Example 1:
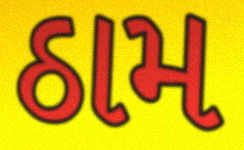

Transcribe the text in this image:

ઠામ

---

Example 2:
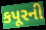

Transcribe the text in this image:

કપૂરની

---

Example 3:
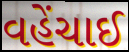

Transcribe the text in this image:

વહેંચાઈ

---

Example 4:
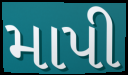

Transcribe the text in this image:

માપી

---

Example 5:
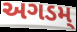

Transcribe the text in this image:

અગડમ્